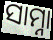
ସାମ୍ନା